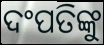
ଦଂପତିଙ୍କୁ